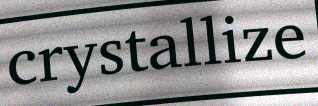
crystallize